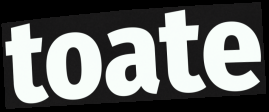
toate